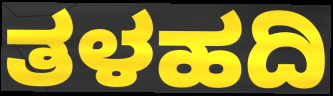
ತಳಹದಿ